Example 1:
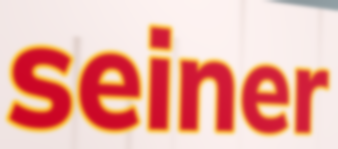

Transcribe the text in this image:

seiner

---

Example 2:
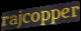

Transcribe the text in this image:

rajcopper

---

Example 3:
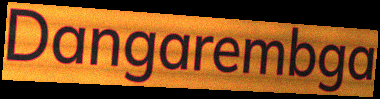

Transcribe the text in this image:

Dangarembga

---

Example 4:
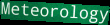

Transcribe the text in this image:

Meteorology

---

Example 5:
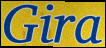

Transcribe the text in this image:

Gira